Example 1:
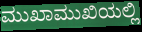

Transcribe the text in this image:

ಮುಖಾಮುಖಿಯಲ್ಲಿ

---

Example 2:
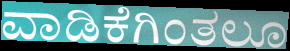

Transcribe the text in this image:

ವಾಡಿಕೆಗಿಂತಲೂ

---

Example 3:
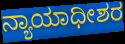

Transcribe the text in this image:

ನ್ಯಾಯಾಧೀಶರ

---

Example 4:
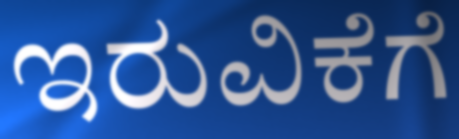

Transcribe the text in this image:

ಇರುವಿಕೆಗೆ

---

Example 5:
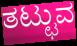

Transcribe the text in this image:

ತಟ್ಟುವ